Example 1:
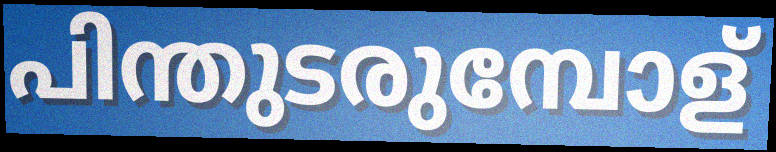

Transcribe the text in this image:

പിന്തുടരുമ്പോള്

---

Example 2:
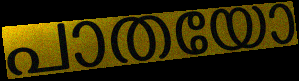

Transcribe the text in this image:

പാതയോ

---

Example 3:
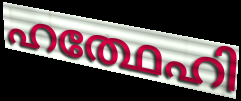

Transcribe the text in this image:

ഹത്ഥേഹി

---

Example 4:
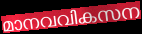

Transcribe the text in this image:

മാനവവികസന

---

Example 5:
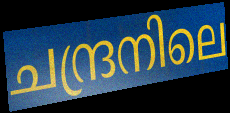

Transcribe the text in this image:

ചന്ദ്രനിലെ